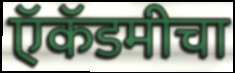
ऍकॅडमीचा